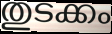
തുടക്കം